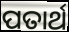
ପତାର୍ଥ